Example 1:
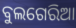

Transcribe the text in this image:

ବୁଲଗେରିଆ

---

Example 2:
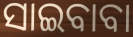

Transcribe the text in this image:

ସାଇବାବା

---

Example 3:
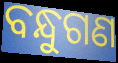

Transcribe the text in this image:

ବନ୍ଧୁଗଣ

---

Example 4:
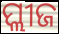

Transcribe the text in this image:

ପ୍ଲୀଜ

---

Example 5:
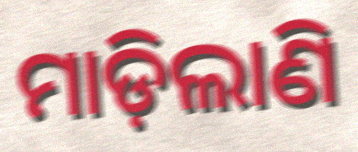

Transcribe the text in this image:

ମାଡ଼ିଲାଣି